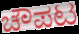
ಚೌಪಟ